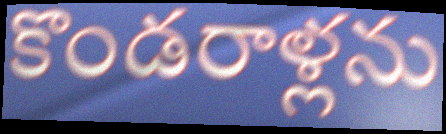
కొండరాళ్లను